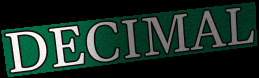
DECIMAL